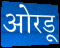
ओरडू